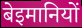
बेइमानियों